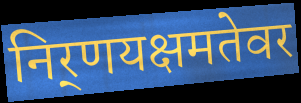
निर्णयक्षमतेवर